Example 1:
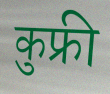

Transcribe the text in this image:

कुफ्री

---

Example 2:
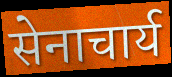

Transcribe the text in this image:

सेनाचार्य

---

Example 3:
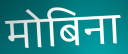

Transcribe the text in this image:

मोबिना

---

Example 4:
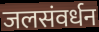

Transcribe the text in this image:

जलसंवर्धन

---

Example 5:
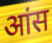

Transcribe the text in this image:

आंस